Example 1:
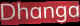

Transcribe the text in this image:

Dhanga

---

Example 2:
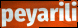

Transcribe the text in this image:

peyarili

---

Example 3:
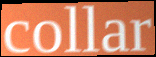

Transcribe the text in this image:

collar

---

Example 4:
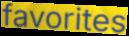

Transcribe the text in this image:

favorites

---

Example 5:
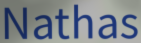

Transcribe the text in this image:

Nathas